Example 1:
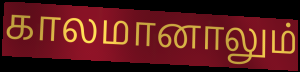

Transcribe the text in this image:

காலமானாலும்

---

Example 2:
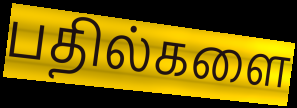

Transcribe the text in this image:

பதில்களை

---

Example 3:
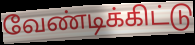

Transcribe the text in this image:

வேண்டிக்கிட்டு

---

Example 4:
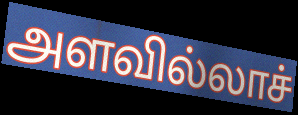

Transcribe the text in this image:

அளவில்லாச்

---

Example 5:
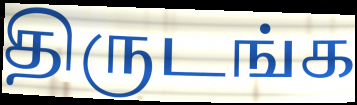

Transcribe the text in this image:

திருடங்க